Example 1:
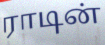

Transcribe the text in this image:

ராடின்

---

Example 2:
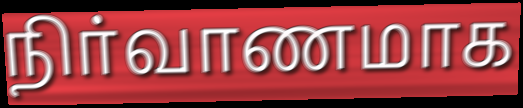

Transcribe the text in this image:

நிர்வாணமாக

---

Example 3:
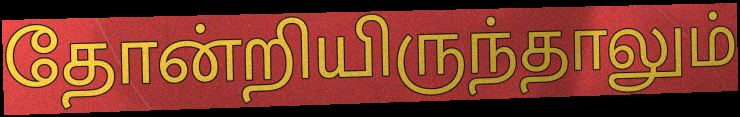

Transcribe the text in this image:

தோன்றியிருந்தாலும்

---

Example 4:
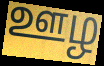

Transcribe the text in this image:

ஊழ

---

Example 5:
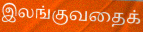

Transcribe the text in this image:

இலங்குவதைக்